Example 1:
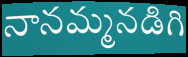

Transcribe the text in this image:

నానమ్మనడిగి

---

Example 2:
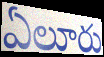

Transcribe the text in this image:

ఏలూరు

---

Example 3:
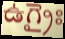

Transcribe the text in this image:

ఉగ్రైః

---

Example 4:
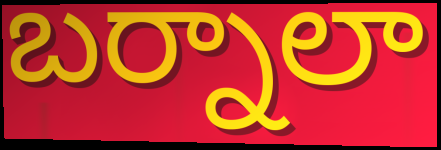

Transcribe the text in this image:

బర్నాలా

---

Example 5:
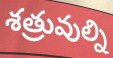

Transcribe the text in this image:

శత్రువుల్ని